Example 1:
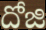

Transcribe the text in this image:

దోజి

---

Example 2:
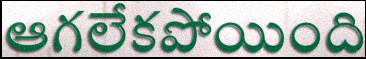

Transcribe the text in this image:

ఆగలేకపోయింది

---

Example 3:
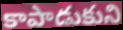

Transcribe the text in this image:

కాపాడుకుని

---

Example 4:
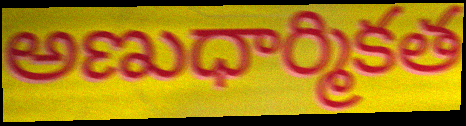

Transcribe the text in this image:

అణుధార్మికత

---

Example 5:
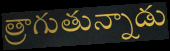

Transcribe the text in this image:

త్రాగుతున్నాడు